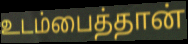
உடம்பைத்தான்